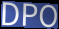
DPO